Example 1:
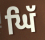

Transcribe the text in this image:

ਘਿੱ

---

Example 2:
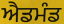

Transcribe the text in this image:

ਐਡਮੰਡ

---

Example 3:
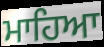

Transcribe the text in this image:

ਮਾਹਿਆ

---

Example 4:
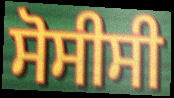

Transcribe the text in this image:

ਸੋਸੀਸੀ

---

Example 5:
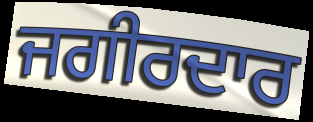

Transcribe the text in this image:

ਜਗੀਰਦਾਰ